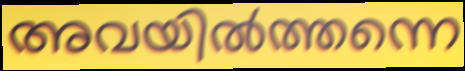
അവയിൽത്തന്നെ